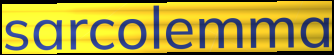
sarcolemma